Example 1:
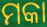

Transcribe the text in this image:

ମକା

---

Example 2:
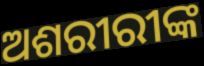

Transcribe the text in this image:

ଅଶରୀରୀଙ୍କ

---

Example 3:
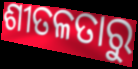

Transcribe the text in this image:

ଶୀତଳତାରୁ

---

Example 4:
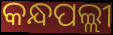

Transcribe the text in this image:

କନ୍ଧପଲ୍ଲୀ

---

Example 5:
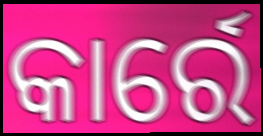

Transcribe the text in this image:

କାର୍ରେ